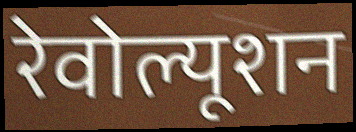
रेवोल्यूशन